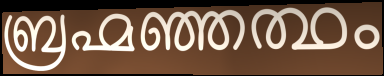
ബ്രഹ്മഞ്ഞത്ഥം